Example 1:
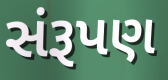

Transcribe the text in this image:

સંરૂપણ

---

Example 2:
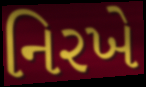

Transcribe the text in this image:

નિરખે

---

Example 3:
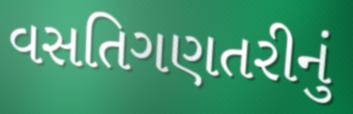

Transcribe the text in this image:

વસતિગણતરીનું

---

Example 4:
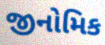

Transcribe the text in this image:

જીનોમિક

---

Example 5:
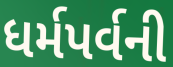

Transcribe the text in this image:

ધર્મપર્વની